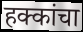
हक्कांचा